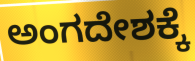
ಅಂಗದೇಶಕ್ಕೆ